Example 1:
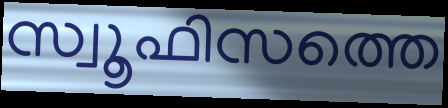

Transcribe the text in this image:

സ്വൂഫിസത്തെ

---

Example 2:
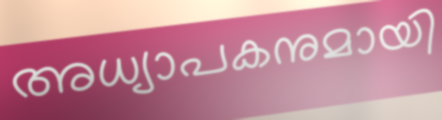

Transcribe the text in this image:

അധ്യാപകനുമായി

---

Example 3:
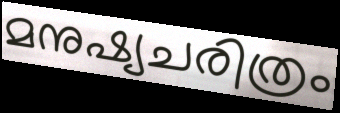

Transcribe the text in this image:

മനുഷ്യചരിത്രം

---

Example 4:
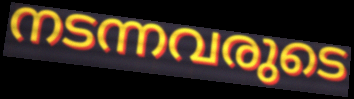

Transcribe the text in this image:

നടന്നവരുടെ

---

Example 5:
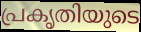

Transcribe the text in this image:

പ്രകൃതിയുടെ